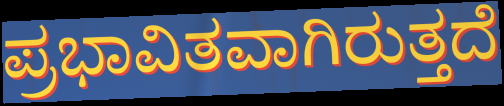
ಪ್ರಭಾವಿತವಾಗಿರುತ್ತದೆ